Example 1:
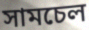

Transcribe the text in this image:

সামচেল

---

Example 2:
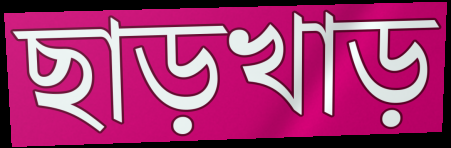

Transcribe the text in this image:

ছাড়খাড়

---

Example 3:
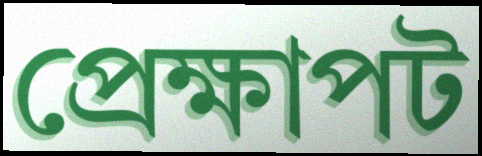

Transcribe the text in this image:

প্রেক্ষাপট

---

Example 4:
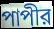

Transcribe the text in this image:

পাপীর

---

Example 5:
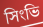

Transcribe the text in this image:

সিংভি